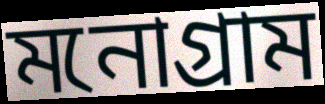
মনোগ্রাম